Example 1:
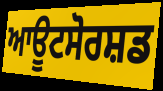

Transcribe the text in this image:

ਆਊਟਸੋਰਸ਼ਡ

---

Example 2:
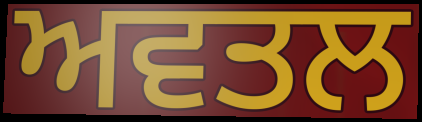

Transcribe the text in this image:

ਅਵਤਲ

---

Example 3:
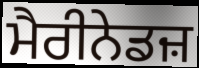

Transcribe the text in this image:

ਮੈਰੀਨੇਡਜ਼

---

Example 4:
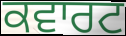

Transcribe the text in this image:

ਕਵਾਰਟ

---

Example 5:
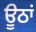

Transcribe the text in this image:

ਊਠਾਂ